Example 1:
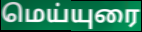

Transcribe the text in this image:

மெய்யுரை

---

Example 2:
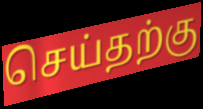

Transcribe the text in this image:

செய்தற்கு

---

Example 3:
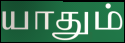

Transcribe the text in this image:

யாதும்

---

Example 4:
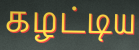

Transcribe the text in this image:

கழட்டிய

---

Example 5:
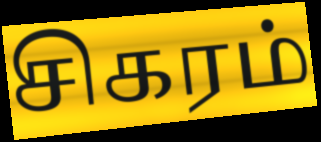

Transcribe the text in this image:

சிகரம்